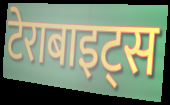
टेराबाइट्स